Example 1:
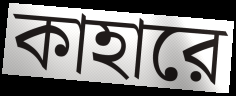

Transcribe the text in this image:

কাহারে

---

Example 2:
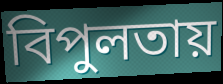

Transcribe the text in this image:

বিপুলতায়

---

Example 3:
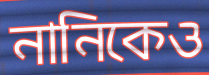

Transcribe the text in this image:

নানিকেও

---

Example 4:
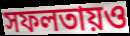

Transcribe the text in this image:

সফলতায়ও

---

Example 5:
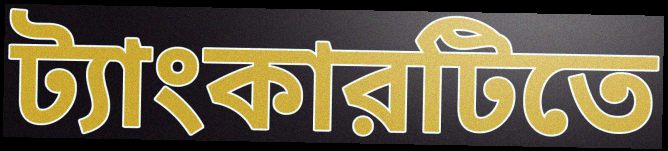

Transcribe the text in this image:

ট্যাংকারটিতে